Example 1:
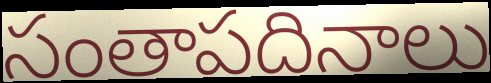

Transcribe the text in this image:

సంతాపదినాలు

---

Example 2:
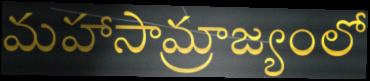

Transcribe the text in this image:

మహాసామ్రాజ్యంలో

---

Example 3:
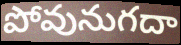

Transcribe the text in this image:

పోవునుగదా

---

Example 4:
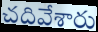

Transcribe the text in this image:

చదివేశారు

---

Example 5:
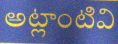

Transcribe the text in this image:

అట్లాంటివి